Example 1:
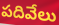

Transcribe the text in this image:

పదివేలు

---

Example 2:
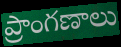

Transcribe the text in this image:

ప్రాంగణాలు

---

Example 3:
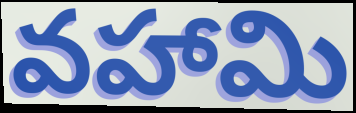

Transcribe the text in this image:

వహామి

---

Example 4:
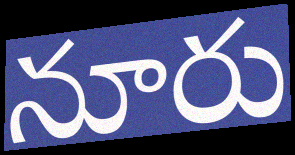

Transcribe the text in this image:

నూరు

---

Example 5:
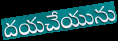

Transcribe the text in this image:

దయచేయును